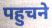
पहुचने